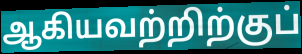
ஆகியவற்றிற்குப்